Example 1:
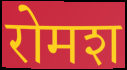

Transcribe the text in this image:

रोमश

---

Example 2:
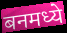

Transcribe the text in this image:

बनमध्ये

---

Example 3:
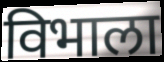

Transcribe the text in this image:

विभाला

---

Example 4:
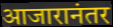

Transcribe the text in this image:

आजारानंतर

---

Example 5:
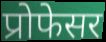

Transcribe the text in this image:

प्रोफेसर